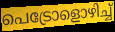
പെട്രോളൊഴിച്ച്